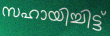
സഹായിച്ചിട്ട്